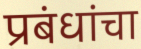
प्रबंधांचा